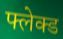
फ्लेक्ड